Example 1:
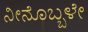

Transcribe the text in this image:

ನೀನೊಬ್ಬಳೇ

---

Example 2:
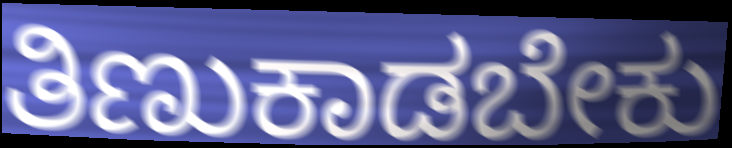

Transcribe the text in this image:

ತಿಣುಕಾಡಬೇಕು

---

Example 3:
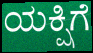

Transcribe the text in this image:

ಯಕ್ಷಿಗೆ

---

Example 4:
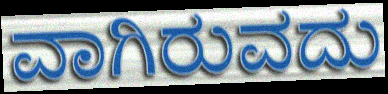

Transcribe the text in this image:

ವಾಗಿರುವದು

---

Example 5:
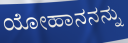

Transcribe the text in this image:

ಯೋಹಾನನನ್ನು